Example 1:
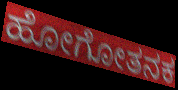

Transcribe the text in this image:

ಹೋಗೋತನಕ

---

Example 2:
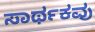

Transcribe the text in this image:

ಸಾರ್ಥಕವು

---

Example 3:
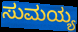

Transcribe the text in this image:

ಸುಮಯ್ಯ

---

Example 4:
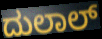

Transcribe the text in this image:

ದುಲಾಲ್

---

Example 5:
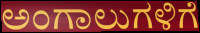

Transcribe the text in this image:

ಅಂಗಾಲುಗಳಿಗೆ